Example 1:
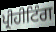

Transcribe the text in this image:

ਪ੍ਰੀਹੀਟਿੰਗ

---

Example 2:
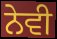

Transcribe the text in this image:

ਨੇਵੀ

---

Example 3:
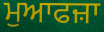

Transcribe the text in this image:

ਮੁਆਫਜ਼ਾ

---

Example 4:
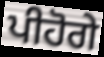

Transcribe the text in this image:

ਪੀਹੋਗੇ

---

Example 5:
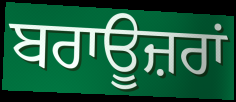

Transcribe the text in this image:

ਬਰਾਊਜ਼ਰਾਂ